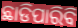
ଛାଡିପାରିବି